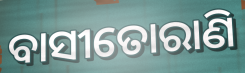
ବାସୀତୋରାଣି